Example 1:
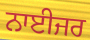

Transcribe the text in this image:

ਨਾਈਜਰ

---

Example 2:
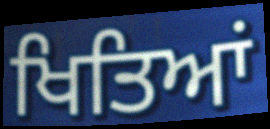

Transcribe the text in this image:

ਖਿਤਿਆਂ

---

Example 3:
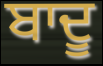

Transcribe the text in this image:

ਬਾਦੂ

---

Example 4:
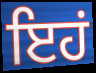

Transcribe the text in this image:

ਇਹਂ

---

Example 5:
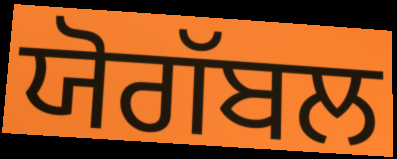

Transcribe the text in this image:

ਯੋਗੱਬਲ